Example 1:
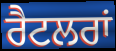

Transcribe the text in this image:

ਰੈਟਲਰਾਂ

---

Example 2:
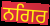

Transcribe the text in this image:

ਨਗਿਰ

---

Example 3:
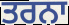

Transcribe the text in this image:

ਤਰਨਾ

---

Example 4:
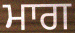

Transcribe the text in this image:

ਮਾਗ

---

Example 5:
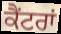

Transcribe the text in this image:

ਕੈਂਟਰਾਂ